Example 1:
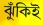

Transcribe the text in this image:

ঝুঁকিই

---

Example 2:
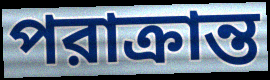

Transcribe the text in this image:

পরাক্রান্ত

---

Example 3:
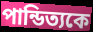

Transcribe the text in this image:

পান্ডিত্যকে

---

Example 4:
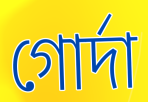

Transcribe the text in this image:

গোর্দা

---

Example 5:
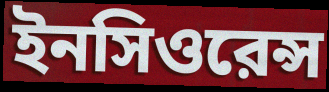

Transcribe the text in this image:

ইনসিওরেন্স